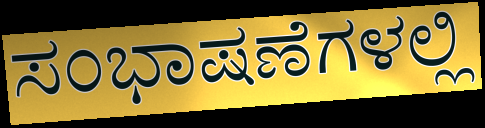
ಸಂಭಾಷಣೆಗಳಲ್ಲಿ